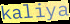
kaliya